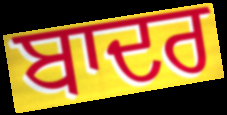
ਬਾਦਰ